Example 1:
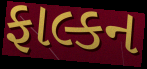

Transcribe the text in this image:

ફાલ્કન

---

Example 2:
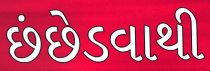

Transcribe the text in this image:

છંછેડવાથી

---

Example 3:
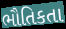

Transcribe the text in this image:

ભૌતિકતા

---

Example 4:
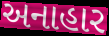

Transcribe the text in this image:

અનાહાર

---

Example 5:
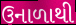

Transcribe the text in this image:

ઉનાળાથી